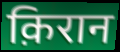
क़िरान